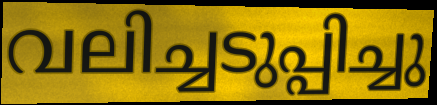
വലിച്ചടുപ്പിച്ചു